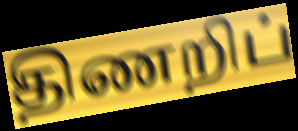
திணறிப்